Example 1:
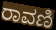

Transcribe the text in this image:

ರಾವಣಿ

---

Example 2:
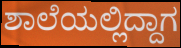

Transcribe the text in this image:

ಶಾಲೆಯಲ್ಲಿದ್ದಾಗ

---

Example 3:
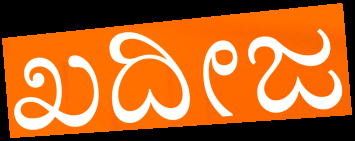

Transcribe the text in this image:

ಖದೀಜ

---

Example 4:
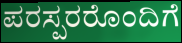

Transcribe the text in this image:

ಪರಸ್ಪರರೊಂದಿಗೆ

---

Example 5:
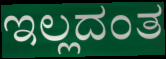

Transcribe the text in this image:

ಇಲ್ಲದಂತ